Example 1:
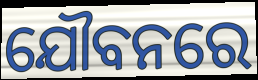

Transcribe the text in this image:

ଯୌବନରେ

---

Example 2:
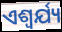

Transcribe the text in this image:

ଏଶ୍ଵର୍ଯ୍ୟ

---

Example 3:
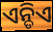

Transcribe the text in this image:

ଏନ୍ଡିଏ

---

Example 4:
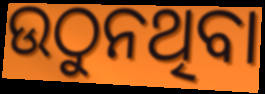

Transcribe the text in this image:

ଉଠୁନଥିବା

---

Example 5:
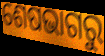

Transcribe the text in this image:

ଶେଷଭାଗରୁ